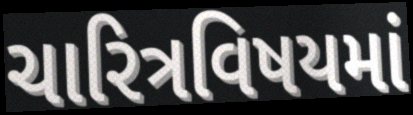
ચારિત્રવિષયમાં